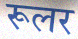
रूलर